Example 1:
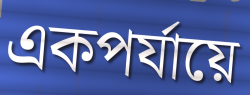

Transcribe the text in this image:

একপর্যায়ে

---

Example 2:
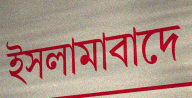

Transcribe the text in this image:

ইসলামাবাদে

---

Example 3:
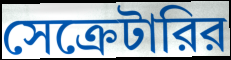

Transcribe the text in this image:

সেক্রেটারির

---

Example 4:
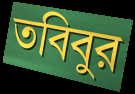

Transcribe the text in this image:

তবিবুর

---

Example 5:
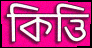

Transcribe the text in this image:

কিত্তি